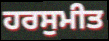
ਹਰਸੁਮੀਤ